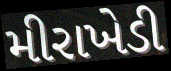
મીરાખેડી